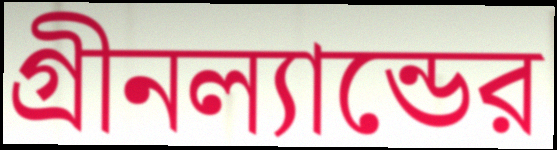
গ্রীনল্যান্ডের